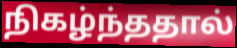
நிகழ்ந்ததால்